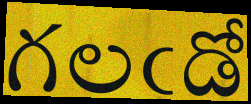
గలఁడో